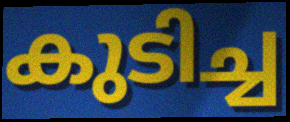
കുടിച്ച